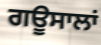
ਗਊਸਾਲਾਂ